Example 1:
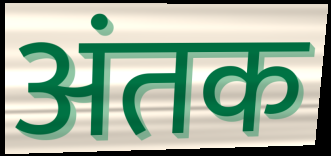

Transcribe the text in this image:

अंतक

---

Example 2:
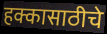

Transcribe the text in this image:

हक्कासाठीचे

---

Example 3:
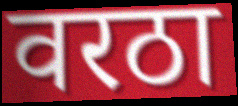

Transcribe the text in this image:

वरठा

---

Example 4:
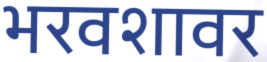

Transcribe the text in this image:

भरवशावर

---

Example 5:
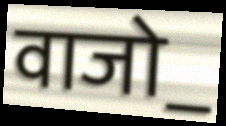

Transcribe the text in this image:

वाजो॒